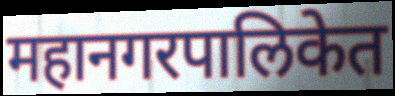
महानगरपालिकेत